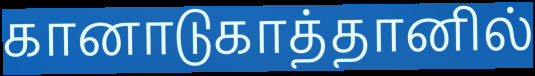
கானாடுகாத்தானில்